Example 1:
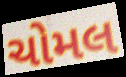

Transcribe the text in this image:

ચોમલ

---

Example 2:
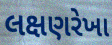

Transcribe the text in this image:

લક્ષણરેખા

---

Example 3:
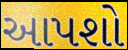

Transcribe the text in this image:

આપશો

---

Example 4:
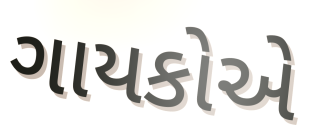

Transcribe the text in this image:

ગાયકોએ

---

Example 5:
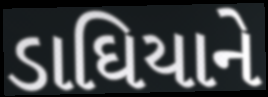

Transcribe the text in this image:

ડાઘિયાને